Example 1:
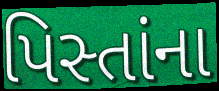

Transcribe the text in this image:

પિસ્તાંના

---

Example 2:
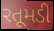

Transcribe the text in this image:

રતૂમડી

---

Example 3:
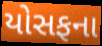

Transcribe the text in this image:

યોસફના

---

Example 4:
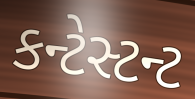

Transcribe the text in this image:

કન્ટેસ્ટન્ટ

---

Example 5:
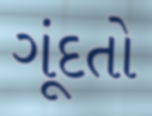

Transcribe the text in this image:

ગૂંદતો